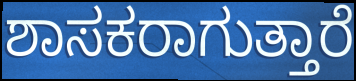
ಶಾಸಕರಾಗುತ್ತಾರೆ